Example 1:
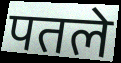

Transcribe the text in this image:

पतले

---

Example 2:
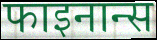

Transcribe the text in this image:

फाइनान्स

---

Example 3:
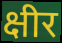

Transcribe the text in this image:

क्षीर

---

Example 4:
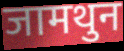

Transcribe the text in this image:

जामथुन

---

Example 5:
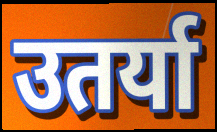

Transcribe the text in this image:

उतर्या